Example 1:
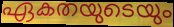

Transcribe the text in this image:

ഏകതയുടെയും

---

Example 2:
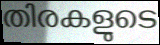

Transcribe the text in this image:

തിരകളുടെ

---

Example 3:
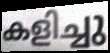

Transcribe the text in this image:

കളിച്ചു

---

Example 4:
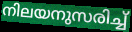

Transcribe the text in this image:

നിലയനുസരിച്ച്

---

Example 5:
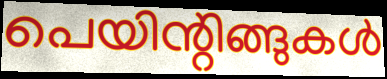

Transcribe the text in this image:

പെയിന്റിങ്ങുകൾ